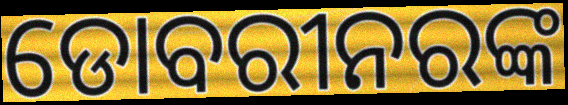
ଡୋବରୀନରଙ୍କ